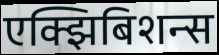
एक्झिबिशन्स